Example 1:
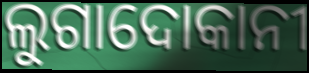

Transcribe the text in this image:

ଲୁଗାଦୋକାନୀ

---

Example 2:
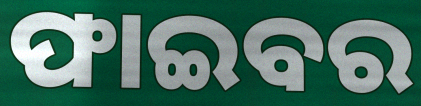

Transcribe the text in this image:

ଫାଇବର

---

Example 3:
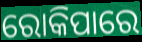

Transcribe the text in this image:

ରୋକିପାରେ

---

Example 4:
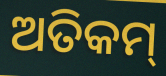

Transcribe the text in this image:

ଅତିକମ୍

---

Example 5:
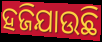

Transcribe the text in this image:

ହଜିଯାଉଛି